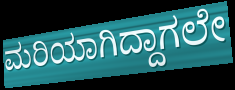
ಮರಿಯಾಗಿದ್ದಾಗಲೇ